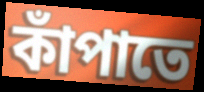
কাঁপাতে